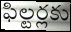
ఫిల్టర్లకు